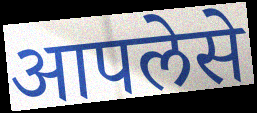
आपलेसे